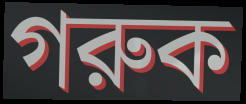
গরুক